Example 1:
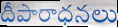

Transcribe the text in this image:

దీపారాధనలు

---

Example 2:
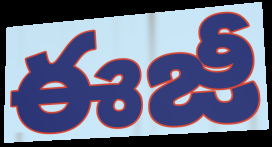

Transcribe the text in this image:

ఈజీ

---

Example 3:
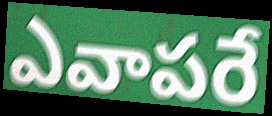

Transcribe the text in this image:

ఎవాపరే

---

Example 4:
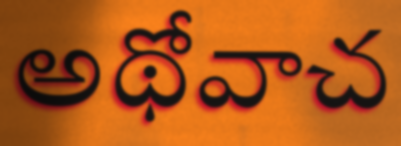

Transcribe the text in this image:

అథోవాచ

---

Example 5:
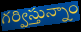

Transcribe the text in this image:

గర్విస్తున్నాం